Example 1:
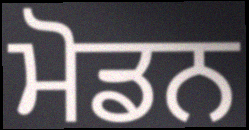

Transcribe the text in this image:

ਮੋਡਨ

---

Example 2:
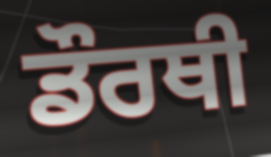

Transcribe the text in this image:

ਡੌਰਥੀ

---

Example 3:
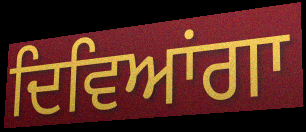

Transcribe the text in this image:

ਦਿਵਿਆਂਗਾ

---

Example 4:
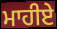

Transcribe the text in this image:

ਮਾਹੀਏ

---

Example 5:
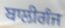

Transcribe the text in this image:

ਬਾਲੀਗੰਜ